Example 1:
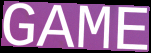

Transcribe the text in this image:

GAME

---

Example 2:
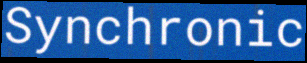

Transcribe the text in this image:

Synchronic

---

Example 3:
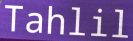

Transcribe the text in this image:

Tahlil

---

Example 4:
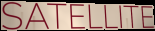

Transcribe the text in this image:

SATELLITE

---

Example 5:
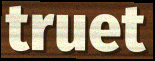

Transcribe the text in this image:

truet